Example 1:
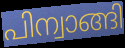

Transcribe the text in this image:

പിന്വാങ്ങി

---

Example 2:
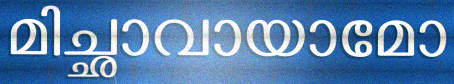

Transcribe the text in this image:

മിച്ഛാവായാമോ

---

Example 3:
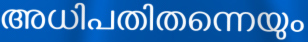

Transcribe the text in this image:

അധിപതിതന്നെയും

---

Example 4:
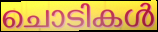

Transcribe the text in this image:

ചൊടികൾ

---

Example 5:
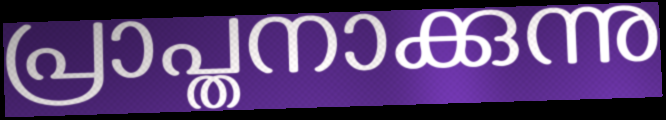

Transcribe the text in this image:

പ്രാപ്തനാക്കുന്നു